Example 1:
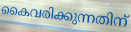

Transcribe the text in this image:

കൈവരിക്കുന്നതിന്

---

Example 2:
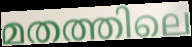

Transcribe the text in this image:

മതത്തിലെ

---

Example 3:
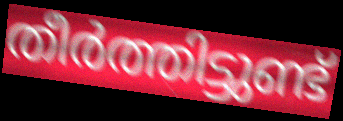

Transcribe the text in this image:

തീർത്തിട്ടുണ്ട്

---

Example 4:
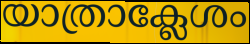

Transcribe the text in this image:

യാത്രാക്ലേശം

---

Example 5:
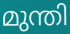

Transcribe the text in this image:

മുന്തി